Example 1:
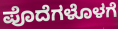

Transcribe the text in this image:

ಪೊದೆಗಳೊಳಗೆ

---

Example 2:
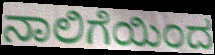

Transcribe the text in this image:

ನಾಲಿಗೆಯಿಂದ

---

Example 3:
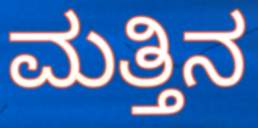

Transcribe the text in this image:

ಮತ್ತಿನ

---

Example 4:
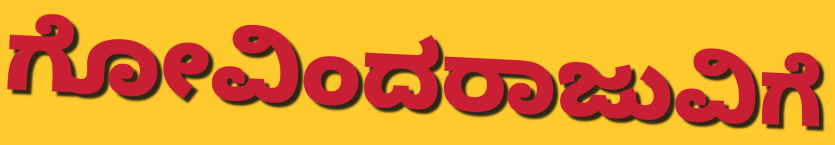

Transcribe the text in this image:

ಗೋವಿಂದರಾಜುವಿಗೆ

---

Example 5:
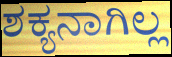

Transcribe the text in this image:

ಶಕ್ಯನಾಗಿಲ್ಲ